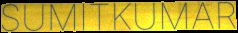
SUMITKUMAR